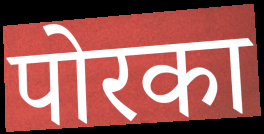
पोरका